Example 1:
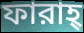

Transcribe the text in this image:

ফারাহ্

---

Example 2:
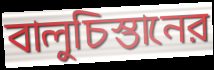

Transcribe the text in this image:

বালুচিস্তানের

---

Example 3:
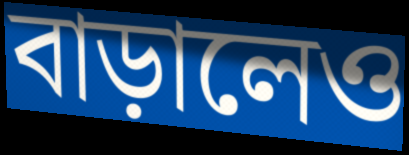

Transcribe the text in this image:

বাড়ালেও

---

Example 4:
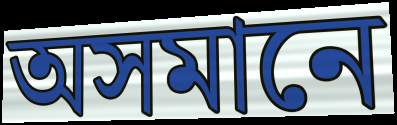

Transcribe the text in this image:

অসমানে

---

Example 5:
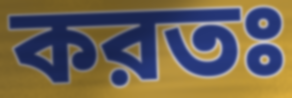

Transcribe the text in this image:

করতঃ